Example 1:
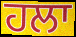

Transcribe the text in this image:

ਹਲਾ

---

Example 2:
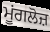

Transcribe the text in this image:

ਮੂਂਗਲੋਜ਼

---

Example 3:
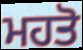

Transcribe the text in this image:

ਮਹਤੋ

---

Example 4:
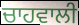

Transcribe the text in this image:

ਚਾਹਵਾਲੀ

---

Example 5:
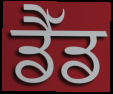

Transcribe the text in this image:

ਡੈੱਡ